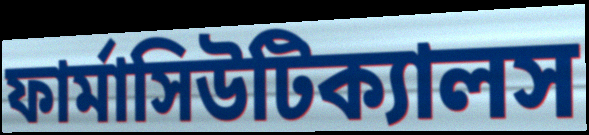
ফার্মাসিউটিক্যালস